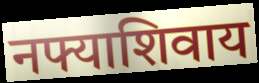
नफ्याशिवाय